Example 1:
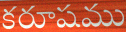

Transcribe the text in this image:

కరూషము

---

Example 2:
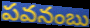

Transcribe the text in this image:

పవనంబు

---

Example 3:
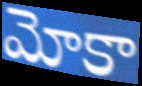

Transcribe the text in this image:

మోకా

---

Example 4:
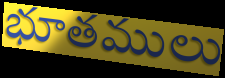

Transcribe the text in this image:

భూతములు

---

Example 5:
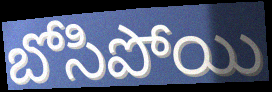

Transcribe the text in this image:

బోసిపోయి